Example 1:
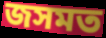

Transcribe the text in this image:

জসমত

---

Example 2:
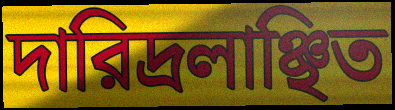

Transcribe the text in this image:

দারিদ্রলাঞ্ছিত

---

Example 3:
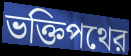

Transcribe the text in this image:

ভক্তিপথের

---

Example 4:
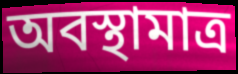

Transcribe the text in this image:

অবস্থামাত্র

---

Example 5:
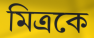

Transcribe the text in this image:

মিত্রকে